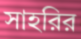
সাহরির